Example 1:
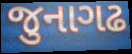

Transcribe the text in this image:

જુનાગઢ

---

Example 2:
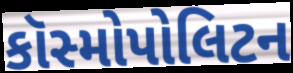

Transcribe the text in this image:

કૉસ્મોપોલિટન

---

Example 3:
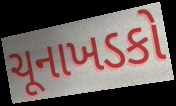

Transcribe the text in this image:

ચૂનાખડકો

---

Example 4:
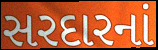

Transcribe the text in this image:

સરદારનાં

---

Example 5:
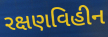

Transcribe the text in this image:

રક્ષણવિહીન